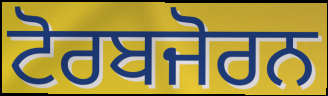
ਟੋਰਬਜੋਰਨ